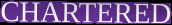
CHARTERED